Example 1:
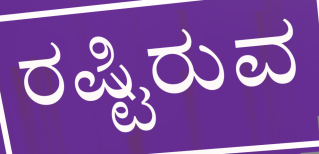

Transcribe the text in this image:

ರಷ್ಟಿರುವ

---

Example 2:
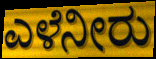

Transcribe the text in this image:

ಎಳೆನೀರು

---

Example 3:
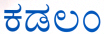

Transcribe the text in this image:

ಕಡಲಂ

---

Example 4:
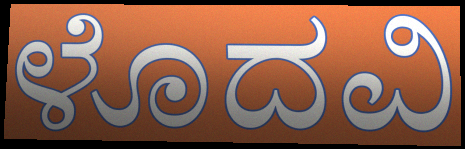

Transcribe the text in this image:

ಳೊದವಿ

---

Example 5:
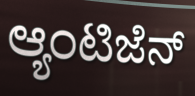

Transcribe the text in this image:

ಆ್ಯಂಟಿಜೆನ್